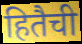
हितैची